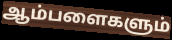
ஆம்பளைகளும்